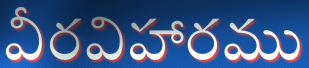
వీరవిహారము